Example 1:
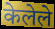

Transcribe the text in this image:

केलेले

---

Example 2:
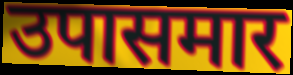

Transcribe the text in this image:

उपासमार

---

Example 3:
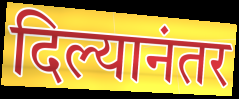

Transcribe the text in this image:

दिल्यानंतर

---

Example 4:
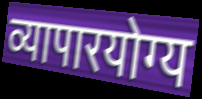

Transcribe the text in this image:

व्यापारयोग्य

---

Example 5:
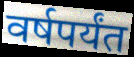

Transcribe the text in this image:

वर्षपर्यंत